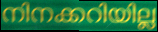
നിനക്കറിയില്ല